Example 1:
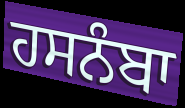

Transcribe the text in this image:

ਹਸਨੰਬਾ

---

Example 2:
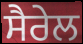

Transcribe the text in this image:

ਸੈਰੇਲ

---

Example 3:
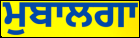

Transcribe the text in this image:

ਮੁਬਾਲਗਾ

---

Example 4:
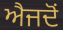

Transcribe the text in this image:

ਐਜਦੋਂ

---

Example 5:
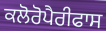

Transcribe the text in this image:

ਕਲੋਰੋਪੈਰੀਫਾਸ